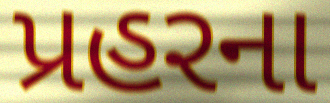
પ્રહરના